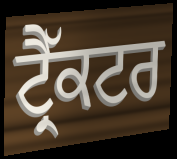
ਟ੍ਰੈੱਕਟਰ